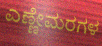
ಎಣ್ಣೇಮರಗಳ